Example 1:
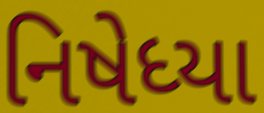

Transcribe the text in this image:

નિષેધ્યા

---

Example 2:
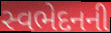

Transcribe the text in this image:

સ્વભેદનની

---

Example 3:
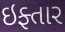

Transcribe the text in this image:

ઇફ્તાર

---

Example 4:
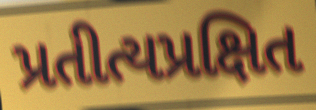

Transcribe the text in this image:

પ્રતીત્યપ્રક્ષિત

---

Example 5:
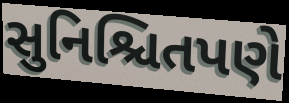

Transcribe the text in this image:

સુનિશ્ચિતપણે